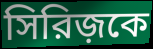
সিরিজ়কে